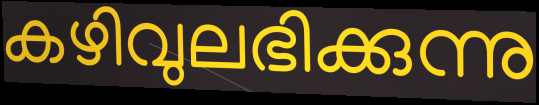
കഴിവുലഭിക്കുന്നു